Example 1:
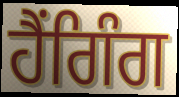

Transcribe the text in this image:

ਹੈਂਗਿੰਗ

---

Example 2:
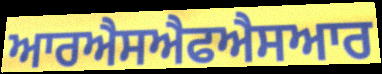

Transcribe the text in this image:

ਆਰਐਸਐਫਐਸਆਰ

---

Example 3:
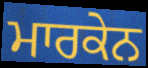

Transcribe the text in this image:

ਮਾਰਕੇਨ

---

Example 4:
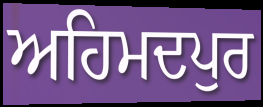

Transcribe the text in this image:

ਅਹਿਮਦਪੁਰ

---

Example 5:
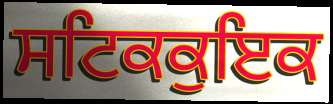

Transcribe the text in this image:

ਸਟਿਕਕੁਇਕ